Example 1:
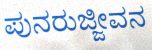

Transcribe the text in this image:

ಪುನರುಜ್ಜೀವನ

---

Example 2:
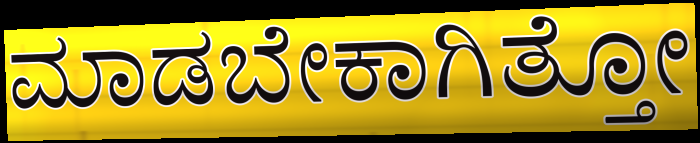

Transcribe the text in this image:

ಮಾಡಬೇಕಾಗಿತ್ತೋ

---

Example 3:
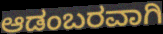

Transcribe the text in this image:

ಆಡಂಬರವಾಗಿ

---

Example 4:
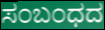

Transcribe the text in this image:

ಸಂಬಂಧದ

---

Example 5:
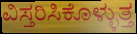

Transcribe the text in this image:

ವಿಸ್ತರಿಸಿಕೊಳ್ಳುತ್ತ